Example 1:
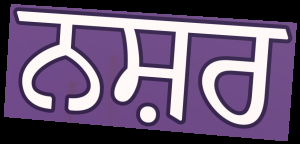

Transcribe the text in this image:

ਨਸ਼ਰ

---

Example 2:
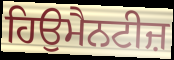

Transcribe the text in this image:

ਹਿਉਮੈਨਟੀਜ਼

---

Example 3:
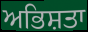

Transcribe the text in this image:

ਅਭਿਸ਼ਤਾ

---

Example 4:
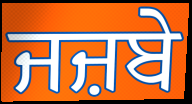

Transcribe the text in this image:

ਜਜ਼ਬੇ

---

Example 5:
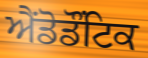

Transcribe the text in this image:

ਐਂਡੋਡੌਂਟਿਕ